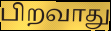
பிறவாது